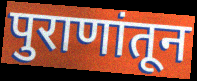
पुराणांतून